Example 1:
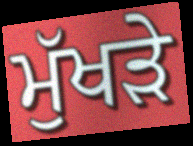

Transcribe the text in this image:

ਮੁੱਖੜੇ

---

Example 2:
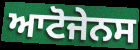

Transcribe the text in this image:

ਆਟੋਜੇਨਸ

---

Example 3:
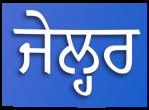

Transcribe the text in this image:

ਜੇਲ੍ਹਰ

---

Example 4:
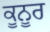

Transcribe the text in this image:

ਕੂਨੂਰ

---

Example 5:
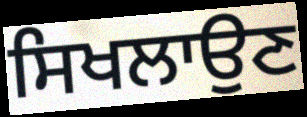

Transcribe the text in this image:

ਸਿਖਲਾਉਣ